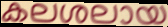
കലശലായ